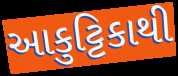
આકુટ્ટિકાથી